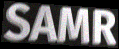
SAMR